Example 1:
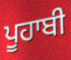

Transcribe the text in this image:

ਪੂਹਾਬੀ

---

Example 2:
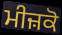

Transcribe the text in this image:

ਮੀਜ਼ਕੋ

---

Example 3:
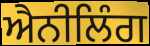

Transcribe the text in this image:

ਐਨੀਲਿੰਗ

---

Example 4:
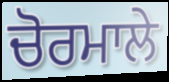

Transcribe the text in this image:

ਚੋਰਮਾਲੇ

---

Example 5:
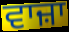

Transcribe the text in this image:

ਵਾਜ਼ਾ